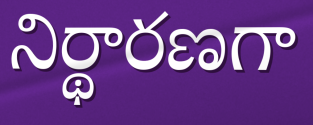
నిర్థారణగా